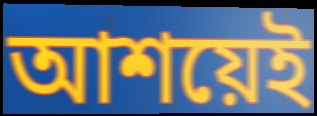
আশয়েই